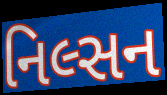
નિલ્સન